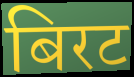
बिरट